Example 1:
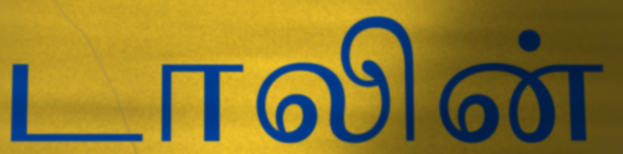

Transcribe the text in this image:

டாலின்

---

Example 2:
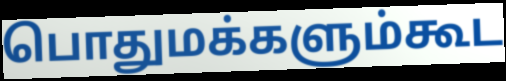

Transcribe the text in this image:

பொதுமக்களும்கூட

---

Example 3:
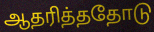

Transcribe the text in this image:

ஆதரித்ததோடு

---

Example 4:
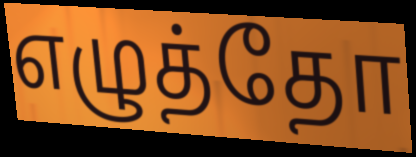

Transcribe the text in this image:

எழுத்தோ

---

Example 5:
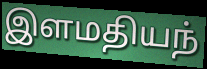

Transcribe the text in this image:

இளமதியந்